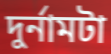
দুর্নামটা